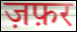
ज़फ़र